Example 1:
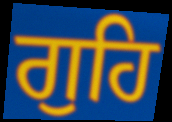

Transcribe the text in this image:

ਗੁਹਿ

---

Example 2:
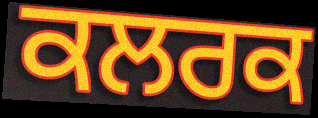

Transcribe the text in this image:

ਕਲਰਕ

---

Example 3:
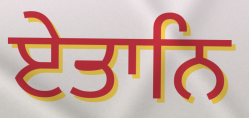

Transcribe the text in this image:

ਏਤਾਨਿ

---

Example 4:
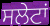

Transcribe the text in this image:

ਸਲੇਟਾਂ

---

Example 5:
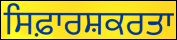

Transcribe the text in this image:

ਸਿਫ਼ਾਰਸ਼ਕਰਤਾ